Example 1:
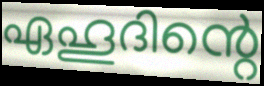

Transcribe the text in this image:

ഏഹൂദിന്റെ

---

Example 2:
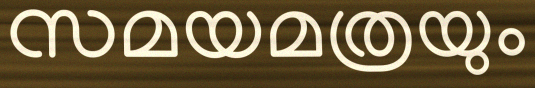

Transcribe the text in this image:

സമയമത്രയും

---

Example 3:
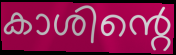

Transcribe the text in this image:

കാശിന്റെ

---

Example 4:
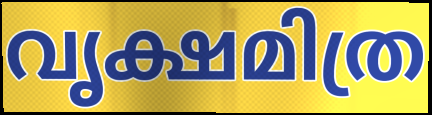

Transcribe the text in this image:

വൃക്ഷമിത്ര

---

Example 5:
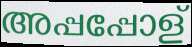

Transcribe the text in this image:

അപ്പപ്പോള്